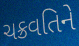
ચક્રવતિને